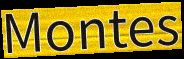
Montes